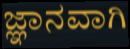
ಜ್ಞಾನವಾಗಿ